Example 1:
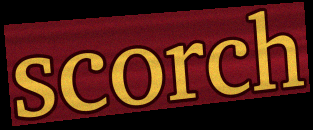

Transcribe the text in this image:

scorch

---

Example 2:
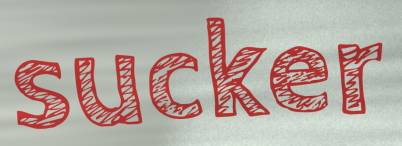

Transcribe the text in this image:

sucker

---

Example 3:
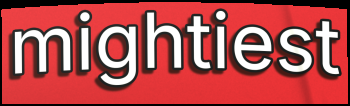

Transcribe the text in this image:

mightiest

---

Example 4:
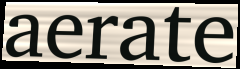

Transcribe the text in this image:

aerate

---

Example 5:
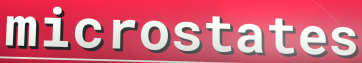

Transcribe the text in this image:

microstates